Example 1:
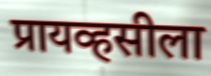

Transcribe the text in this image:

प्रायव्हसीला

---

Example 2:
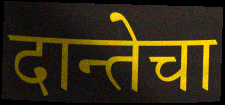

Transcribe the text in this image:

दान्तेचा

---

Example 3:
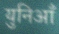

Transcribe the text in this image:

युनिआँ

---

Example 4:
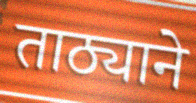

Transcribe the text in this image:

ताठ्याने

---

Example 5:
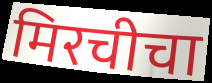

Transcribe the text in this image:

मिरचीचा